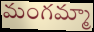
మంగమ్మా